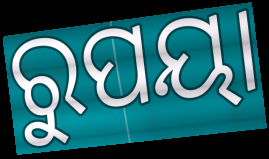
ରୁପୟା